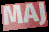
MAJ